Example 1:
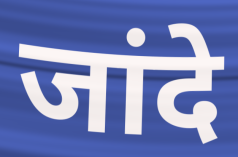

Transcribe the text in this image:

जांदे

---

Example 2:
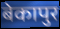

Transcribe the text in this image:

बेकापुर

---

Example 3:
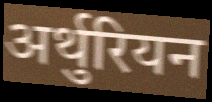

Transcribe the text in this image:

अर्थुरियन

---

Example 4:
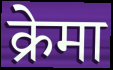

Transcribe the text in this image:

क्रेमा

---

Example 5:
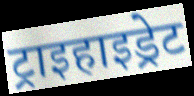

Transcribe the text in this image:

ट्राइहाइड्रेट